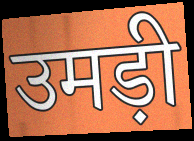
उमड़ी